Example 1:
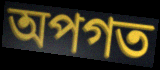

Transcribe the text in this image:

অপগত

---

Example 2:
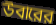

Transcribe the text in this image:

উবারের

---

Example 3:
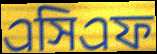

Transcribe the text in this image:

এসিএফ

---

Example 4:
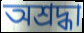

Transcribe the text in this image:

অশ্রদ্ধা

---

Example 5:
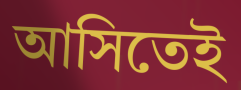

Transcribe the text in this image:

আসিতেই